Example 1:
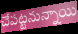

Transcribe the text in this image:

చేపట్టనున్నాయి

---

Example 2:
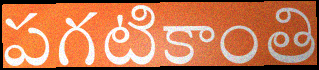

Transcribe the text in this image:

పగటికాంతి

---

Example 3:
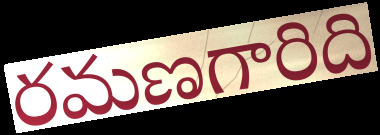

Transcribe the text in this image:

రమణగారిది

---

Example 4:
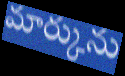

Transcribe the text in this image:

మార్కును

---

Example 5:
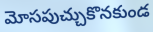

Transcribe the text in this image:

మోసపుచ్చుకొనకుండ